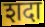
शदा